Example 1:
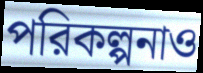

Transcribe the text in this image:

পরিকল্পনাও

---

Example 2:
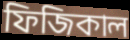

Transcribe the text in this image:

ফিজিকাল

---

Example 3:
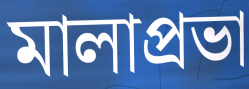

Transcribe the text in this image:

মালাপ্রভা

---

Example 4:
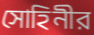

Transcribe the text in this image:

সোহিনীর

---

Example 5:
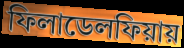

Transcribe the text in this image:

ফিলাডেলফিয়ায়